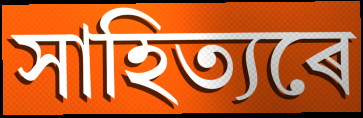
সাহিত্য়ৰে